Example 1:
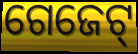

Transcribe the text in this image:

ଗେଜେଟ୍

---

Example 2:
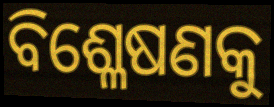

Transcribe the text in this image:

ବିଶ୍ଳେଷଣକୁ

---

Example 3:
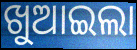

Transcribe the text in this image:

ଖୁଆଇଲା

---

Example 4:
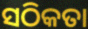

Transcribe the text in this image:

ସଠିକତା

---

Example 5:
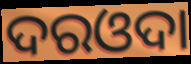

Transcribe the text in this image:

ଦରଓଦା